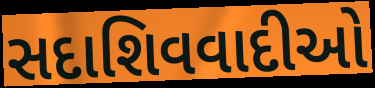
સદાશિવવાદીઓ